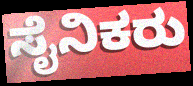
ಸೈನಿಕರು